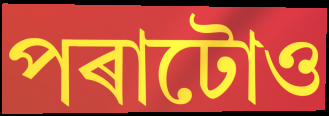
পৰাটোও